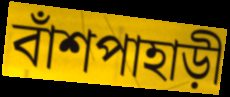
বাঁশপাহাড়ী